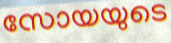
സോയയുടെ